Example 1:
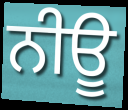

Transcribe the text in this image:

ਨੀਊ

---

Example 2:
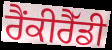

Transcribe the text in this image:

ਰੈਂਕੀਰੈੱਡੀ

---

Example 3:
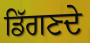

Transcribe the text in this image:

ਡਿੱਗਣਦੇ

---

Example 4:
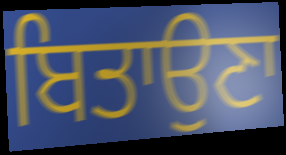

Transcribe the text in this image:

ਬਿਤਾਉਣਾ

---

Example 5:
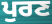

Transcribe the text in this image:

ਪੁਰਣ